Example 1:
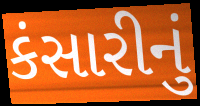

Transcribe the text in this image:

કંસારીનું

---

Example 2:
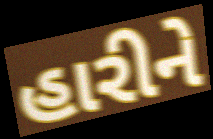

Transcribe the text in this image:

હારીને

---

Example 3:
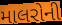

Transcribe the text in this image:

માલરોની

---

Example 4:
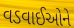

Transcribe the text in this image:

વડવાઈઓને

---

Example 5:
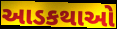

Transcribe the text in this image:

આડકથાઓ